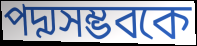
পদ্মসম্ভবকে